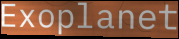
Exoplanet